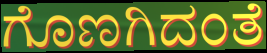
ಗೊಣಗಿದಂತೆ